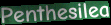
Penthesilea